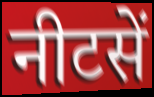
नीटसें